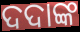
ଦଦାଙ୍କ